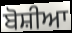
ਬੋਸ਼ੀਆ